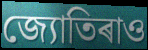
জ্যোতিৰাও